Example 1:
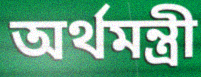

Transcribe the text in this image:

অর্থমন্ত্রী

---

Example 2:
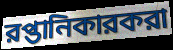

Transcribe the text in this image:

রপ্তানিকারকরা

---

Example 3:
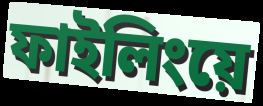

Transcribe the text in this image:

ফাইলিংয়ে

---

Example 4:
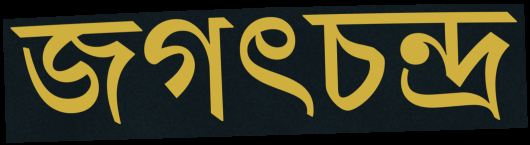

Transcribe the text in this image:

জগৎচন্দ্র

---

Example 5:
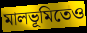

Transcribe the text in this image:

মালভূমিতেও